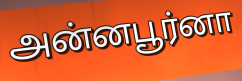
அன்னபூர்னா